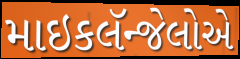
માઇકલૅન્જેલોએ